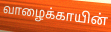
வாழைக்காயின்